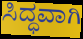
ಸಿದ್ಧವಾಗಿ